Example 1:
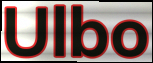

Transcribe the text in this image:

Ulbo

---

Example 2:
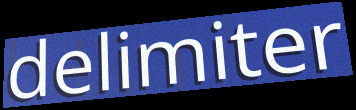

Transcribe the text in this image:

delimiter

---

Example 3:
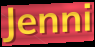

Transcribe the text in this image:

Jenni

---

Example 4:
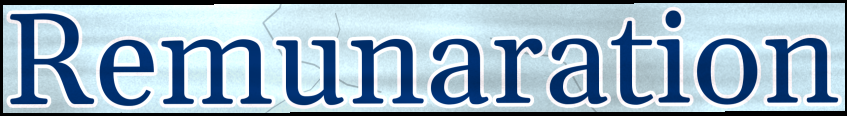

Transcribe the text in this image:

Remunaration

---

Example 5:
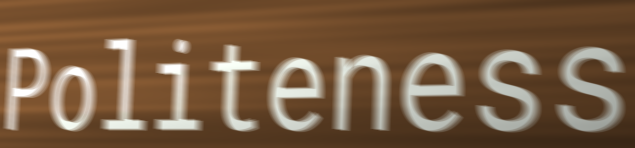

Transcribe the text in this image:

Politeness